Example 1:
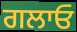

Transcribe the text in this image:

ਗਲਾਓ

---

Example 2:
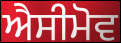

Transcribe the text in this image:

ਐਸੀਮੋਵ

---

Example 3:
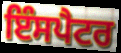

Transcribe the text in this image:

ਇੰਸਪੈਟਰ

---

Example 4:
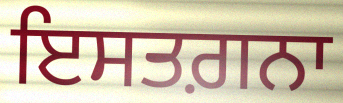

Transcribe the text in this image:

ਇਸਤਗ਼ਨਾ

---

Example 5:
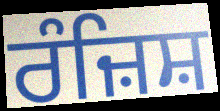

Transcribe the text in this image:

ਰੰਜ਼ਿਸ਼